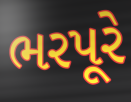
ભરપૂરે